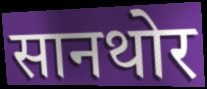
सानथोर